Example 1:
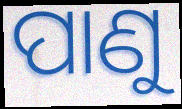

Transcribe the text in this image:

ପାଣୁ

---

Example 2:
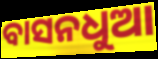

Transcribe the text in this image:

ବାସନଧୁଆ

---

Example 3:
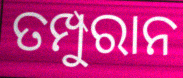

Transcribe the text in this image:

ତମ୍ପୁରାନ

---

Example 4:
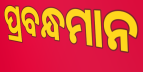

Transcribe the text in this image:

ପ୍ରବନ୍ଧମାନ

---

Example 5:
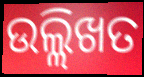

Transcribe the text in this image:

ଉଲ୍ଲିଖତ